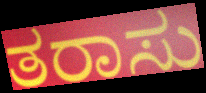
ತರಾಸು